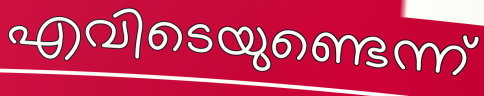
എവിടെയുണ്ടെന്ന്